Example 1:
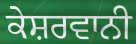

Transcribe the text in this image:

ਕੇਸ਼ਰਵਾਨੀ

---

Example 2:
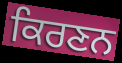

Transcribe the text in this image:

ਕਿਰਣਨ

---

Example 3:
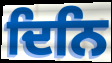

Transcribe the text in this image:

ਦਿਨਿ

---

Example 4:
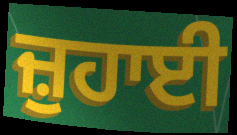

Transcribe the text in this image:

ਜ਼ੁਹਾਈ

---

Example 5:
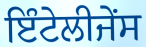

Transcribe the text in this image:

ਇੰਟੇਲੀਜੇੰਸ